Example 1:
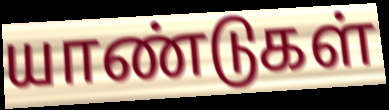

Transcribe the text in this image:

யாண்டுகள்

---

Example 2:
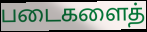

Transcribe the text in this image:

படைகளைத்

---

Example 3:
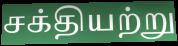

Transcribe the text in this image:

சக்தியற்று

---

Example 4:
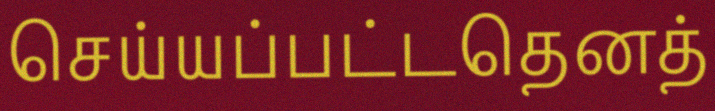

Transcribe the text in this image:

செய்யப்பட்டதெனத்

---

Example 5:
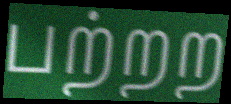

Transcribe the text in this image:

பற்றற